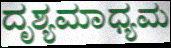
ದೃಶ್ಯಮಾಧ್ಯಮ